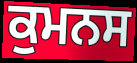
ਕੁਮਨਸ